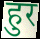
हुर